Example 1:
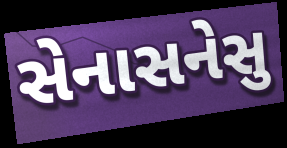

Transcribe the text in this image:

સેનાસનેસુ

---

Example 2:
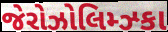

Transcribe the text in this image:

જેરોઝોલિમ્ઝ્કા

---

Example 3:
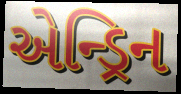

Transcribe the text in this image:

એન્ડ્રિન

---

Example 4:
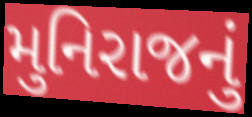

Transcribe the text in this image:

મુનિરાજનું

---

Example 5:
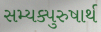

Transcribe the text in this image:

સમ્યક્પુરુષાર્થ